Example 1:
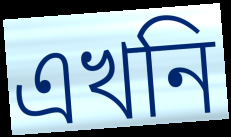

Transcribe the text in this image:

এখনি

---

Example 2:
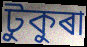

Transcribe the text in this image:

টুকুৰা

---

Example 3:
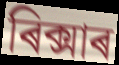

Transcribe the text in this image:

ৰিক্সাৰ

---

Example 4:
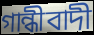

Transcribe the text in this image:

গান্ধীবাদী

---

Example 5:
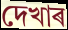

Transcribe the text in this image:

দেখাৰ